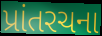
પ્રાંતરચના